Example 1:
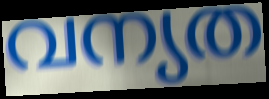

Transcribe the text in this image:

വന്യത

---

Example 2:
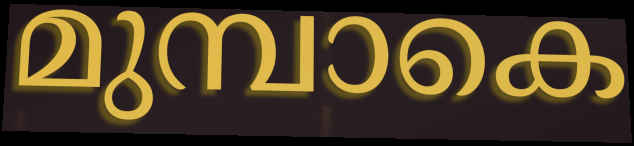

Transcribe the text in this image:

മുമ്പാകെ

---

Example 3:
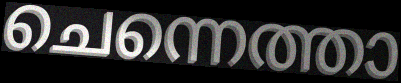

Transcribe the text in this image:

ചെന്നെത്താ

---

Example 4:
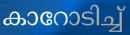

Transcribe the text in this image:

കാറോടിച്ച്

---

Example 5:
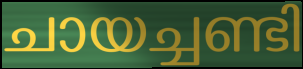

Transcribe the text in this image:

ചായച്ചണ്ടി